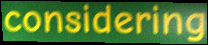
considering